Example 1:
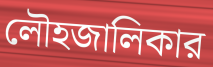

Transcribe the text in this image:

লৌহজালিকার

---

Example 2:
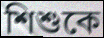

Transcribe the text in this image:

শিশুকে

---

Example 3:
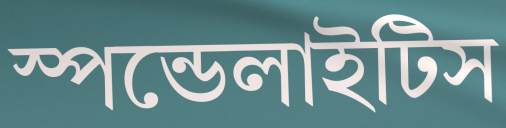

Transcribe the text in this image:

স্পন্ডেলাইটিস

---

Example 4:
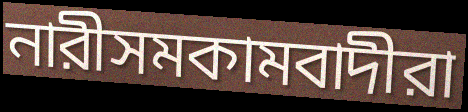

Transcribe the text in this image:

নারীসমকামবাদীরা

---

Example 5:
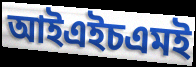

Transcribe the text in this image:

আইএইচএমই